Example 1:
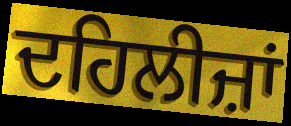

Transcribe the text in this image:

ਦਹਿਲੀਜ਼ਾਂ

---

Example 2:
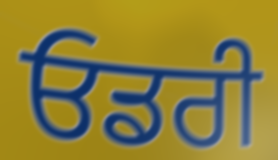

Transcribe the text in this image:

ਓਡਰੀ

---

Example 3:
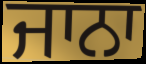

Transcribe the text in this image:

ਜਾਨਾ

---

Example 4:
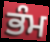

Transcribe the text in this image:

ਭੰਮ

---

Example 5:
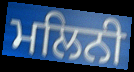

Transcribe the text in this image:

ਮਲਿਨੀ